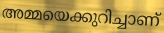
അമ്മയെക്കുറിച്ചാണ്